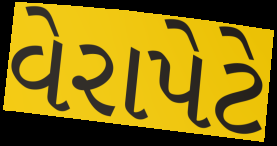
વેરાપેટે